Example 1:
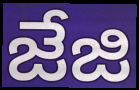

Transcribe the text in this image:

జేజి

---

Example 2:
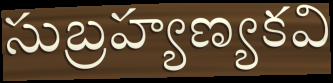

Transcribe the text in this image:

సుబ్రహ్యణ్యకవి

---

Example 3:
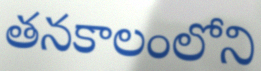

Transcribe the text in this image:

తనకాలంలోని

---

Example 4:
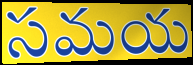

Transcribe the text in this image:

సమయ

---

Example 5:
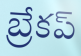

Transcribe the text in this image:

బ్రేకప్